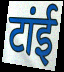
टांई